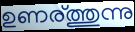
ഉണര്ത്തുന്നു